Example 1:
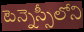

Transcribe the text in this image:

టెన్నెస్సీలోని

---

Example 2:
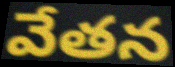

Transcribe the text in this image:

వేతన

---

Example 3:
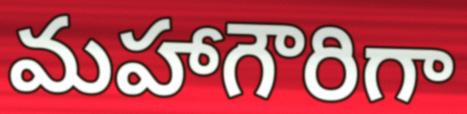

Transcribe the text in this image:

మహాగౌరిగా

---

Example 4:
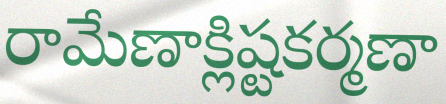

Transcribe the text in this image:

రామేణాక్లిష్టకర్మణా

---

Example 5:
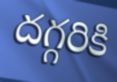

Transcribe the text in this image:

దగ్గరికి